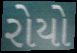
રોયો